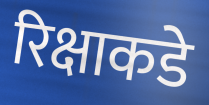
रिक्षाकडे